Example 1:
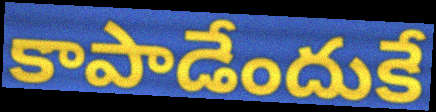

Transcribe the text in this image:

కాపాడేందుకే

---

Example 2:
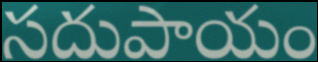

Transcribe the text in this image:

సదుపాయం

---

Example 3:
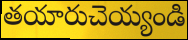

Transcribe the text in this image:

తయారుచెయ్యండి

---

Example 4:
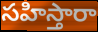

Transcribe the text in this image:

సహిస్తారా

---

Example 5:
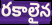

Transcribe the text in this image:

రకాలైన